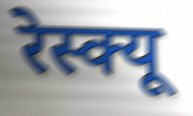
रेस्क्यू